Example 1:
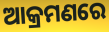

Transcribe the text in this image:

ଆକ୍ରମଣରେ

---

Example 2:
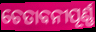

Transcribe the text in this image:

ଚେତାବନୀପୂର୍ଣ୍ଣ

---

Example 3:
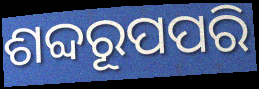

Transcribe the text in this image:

ଶବ୍ଦରୂପପରି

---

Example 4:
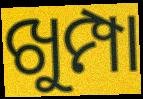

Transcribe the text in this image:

ଖୁମ୍ପା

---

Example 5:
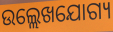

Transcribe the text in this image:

ଉଲ୍ଲେଖଯୋଗ୍ୟ